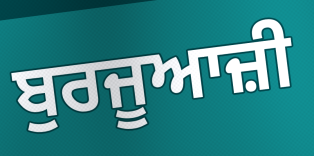
ਬੁਰਜੂਆਜ਼ੀ